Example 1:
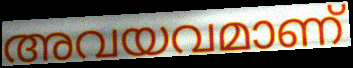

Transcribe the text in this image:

അവയവമാണ്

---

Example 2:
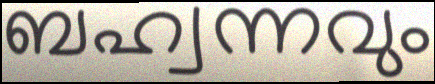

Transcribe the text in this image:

ബഹ്വന്നവും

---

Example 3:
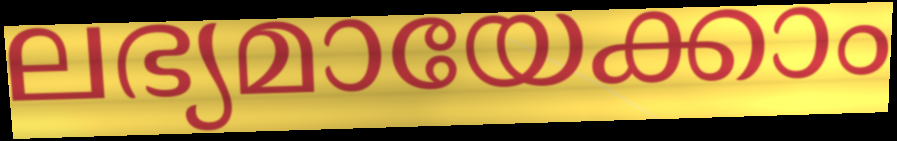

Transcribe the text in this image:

ലഭ്യമായേക്കാം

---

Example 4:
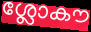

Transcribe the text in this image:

ശ്ലോകൗ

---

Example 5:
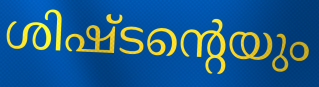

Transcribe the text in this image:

ശിഷ്ടന്റെയും